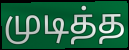
முடித்த